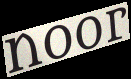
noor